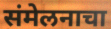
संमेलनाचा